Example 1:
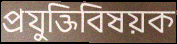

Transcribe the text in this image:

প্রযুক্তিবিষয়ক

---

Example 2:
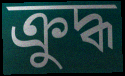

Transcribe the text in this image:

ক্রুদ্ধ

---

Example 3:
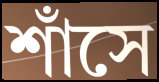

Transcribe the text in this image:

শাঁসে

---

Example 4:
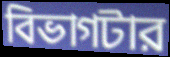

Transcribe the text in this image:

বিভাগটার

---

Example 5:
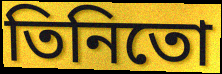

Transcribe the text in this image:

তিনিতো